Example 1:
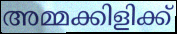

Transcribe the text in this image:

അമ്മക്കിളിക്ക്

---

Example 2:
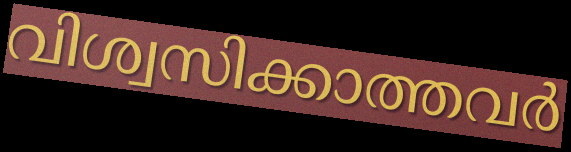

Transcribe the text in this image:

വിശ്വസിക്കാത്തവർ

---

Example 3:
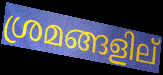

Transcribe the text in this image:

ശ്രമങ്ങളില്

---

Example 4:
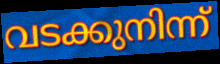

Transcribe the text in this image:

വടക്കുനിന്ന്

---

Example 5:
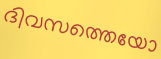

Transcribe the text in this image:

ദിവസത്തെയോ